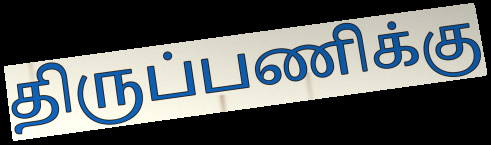
திருப்பணிக்கு